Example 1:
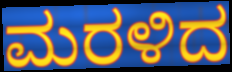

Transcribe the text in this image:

ಮರಳಿದ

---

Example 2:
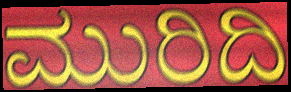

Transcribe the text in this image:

ಮುರಿದಿ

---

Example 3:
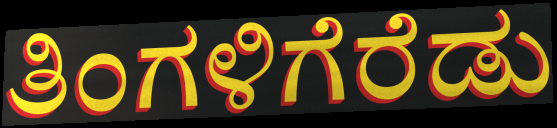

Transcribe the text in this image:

ತಿಂಗಳಿಗೆರೆಡು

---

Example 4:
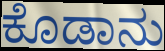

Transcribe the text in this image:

ಕೊಡಾನು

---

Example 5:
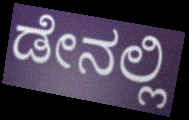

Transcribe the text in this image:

ಡೇನಲ್ಲಿ